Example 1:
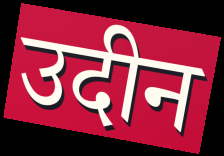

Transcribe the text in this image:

उदीन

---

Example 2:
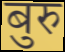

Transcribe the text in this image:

बुरु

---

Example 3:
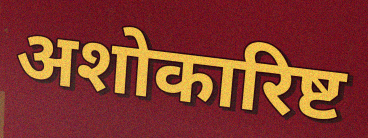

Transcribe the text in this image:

अशोकारिष्ट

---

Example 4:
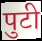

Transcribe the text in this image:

पुटी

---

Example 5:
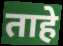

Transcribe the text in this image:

ताहे